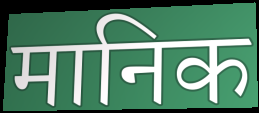
मानिक